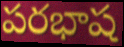
పరభాష